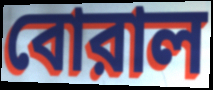
বোরাল